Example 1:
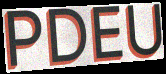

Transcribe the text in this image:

PDEU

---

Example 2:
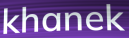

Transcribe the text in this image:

khanek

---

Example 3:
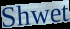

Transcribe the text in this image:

Shwet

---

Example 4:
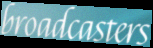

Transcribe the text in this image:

broadcasters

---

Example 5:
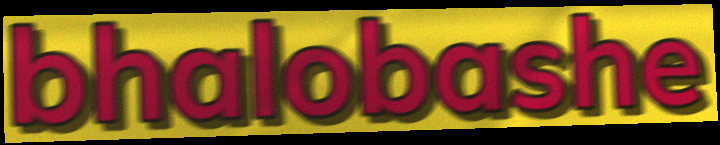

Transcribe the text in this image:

bhalobashe